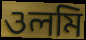
ওলমি